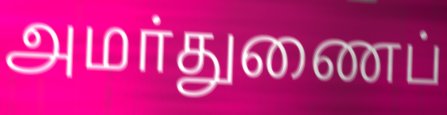
அமர்துணைப்